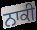
ਨਾਕੀ